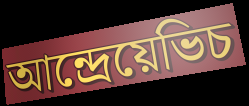
আন্দ্রেয়েভিচ